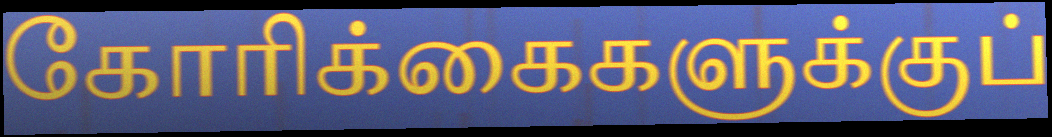
கோரிக்கைகளுக்குப்